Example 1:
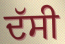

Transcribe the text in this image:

ਦੱਸੀ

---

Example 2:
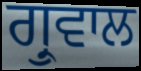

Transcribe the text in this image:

ਗ੍ਰੁਵਾਲ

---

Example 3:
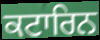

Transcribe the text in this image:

ਕਟਾਰਿਨ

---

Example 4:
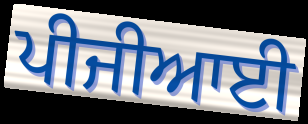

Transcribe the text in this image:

ਪੀਜੀਆਈ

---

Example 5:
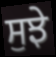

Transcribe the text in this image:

ਸੁਝੇ